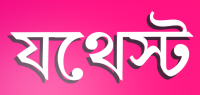
যথেস্ট